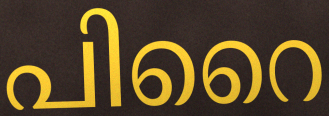
പിറൈ